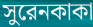
সুরেনকাকা